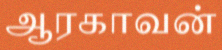
ஆரகாவன்